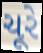
ચૂરે